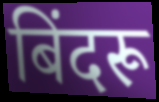
बिंदरू